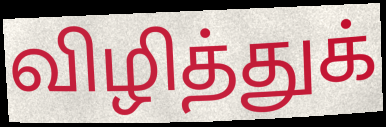
விழித்துக்